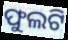
ଫୁଲଟି